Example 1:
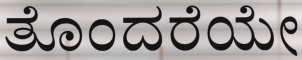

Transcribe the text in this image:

ತೊಂದರೆಯೇ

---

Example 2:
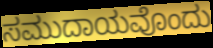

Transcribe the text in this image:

ಸಮುದಾಯವೊಂದು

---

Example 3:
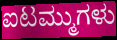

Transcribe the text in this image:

ಐಟಮ್ಮುಗಳು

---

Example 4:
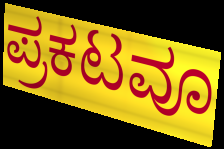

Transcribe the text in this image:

ಪ್ರಕಟವೂ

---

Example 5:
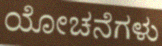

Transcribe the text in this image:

ಯೋಚನೆಗಳು